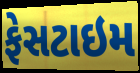
ફેસટાઇમ